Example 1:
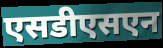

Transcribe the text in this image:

एसडीएसएन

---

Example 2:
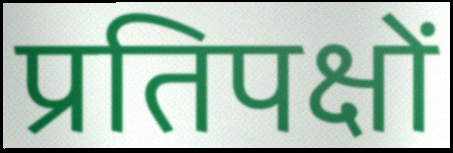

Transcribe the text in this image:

प्रतिपक्षों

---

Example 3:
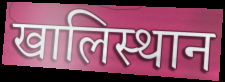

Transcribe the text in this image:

खालिस्थान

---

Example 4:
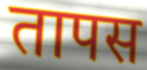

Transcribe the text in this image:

तापस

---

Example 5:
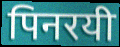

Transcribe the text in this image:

पिनरयी